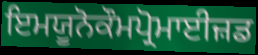
ਇਮਯੂਨੋਕੌਮਪ੍ਰੋਮਾਈਜ਼ਡ